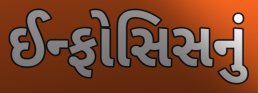
ઈન્ફોસિસનું